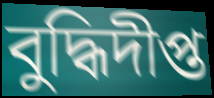
বুদ্ধিদীপ্ত